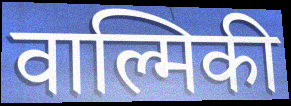
वाल्मिकी